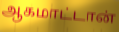
ஆகமாட்டான்